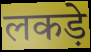
लकड़े